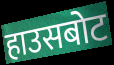
हाउसबोट